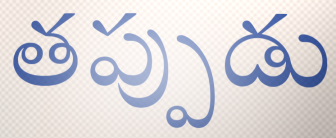
తప్పుడు